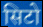
सिटो